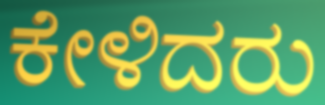
ಕೇಳಿದರು